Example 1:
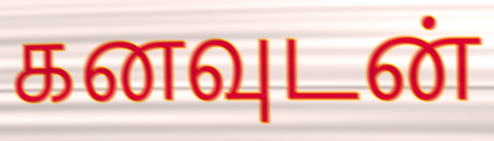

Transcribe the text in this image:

கனவுடன்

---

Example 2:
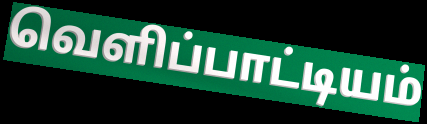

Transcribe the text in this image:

வெளிப்பாட்டியம்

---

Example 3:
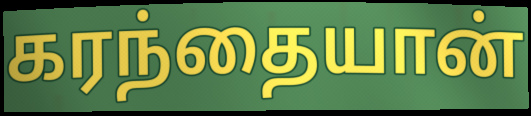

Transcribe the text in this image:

கரந்தையான்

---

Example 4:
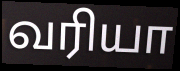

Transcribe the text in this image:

வரியா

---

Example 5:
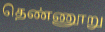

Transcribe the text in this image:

தெண்ணூறு